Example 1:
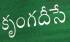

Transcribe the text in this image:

కృంగదీసే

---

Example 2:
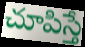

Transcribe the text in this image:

చూపిస్తే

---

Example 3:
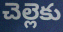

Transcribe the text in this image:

చెల్లెకు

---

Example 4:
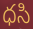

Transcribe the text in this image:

ధసి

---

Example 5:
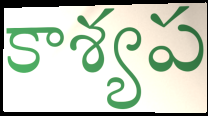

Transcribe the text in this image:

కాశ్యప